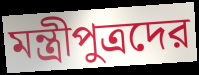
মন্ত্রীপুত্রদের